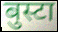
बुस्टा